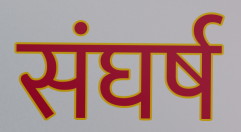
संघर्ष